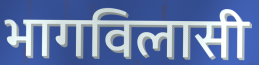
भागविलासी